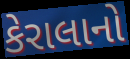
કેરાલાનો